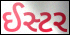
ઈસ્ટર